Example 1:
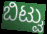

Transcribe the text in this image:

ಬಿಟ್ವು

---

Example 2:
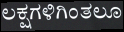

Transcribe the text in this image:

ಲಕ್ಷಗಳಿಗಿಂತಲೂ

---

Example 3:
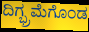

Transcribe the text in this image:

ದಿಗ್ಭ್ರಮೆಗೊಂಡ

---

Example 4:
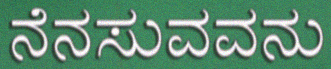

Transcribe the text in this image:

ನೆನಸುವವನು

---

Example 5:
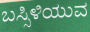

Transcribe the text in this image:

ಬಸ್ಸಿಳಿಯುವ